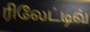
ரிலேட்டிவ்